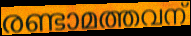
രണ്ടാമത്തവന്